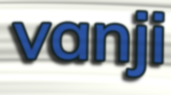
vanji